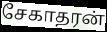
சேகாதரன்